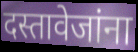
दस्तावेजांना